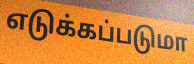
எடுக்கப்படுமா